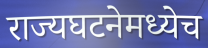
राज्यघटनेमध्येच